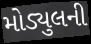
મોડ્યુલની